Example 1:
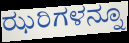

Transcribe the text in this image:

ಝರಿಗಳನ್ನೂ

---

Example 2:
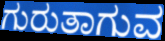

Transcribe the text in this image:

ಗುರುತಾಗುವ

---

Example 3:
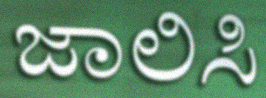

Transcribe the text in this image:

ಜಾಲಿಸಿ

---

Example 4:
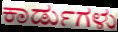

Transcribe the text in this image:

ಕಾರ್ಡುಗಳು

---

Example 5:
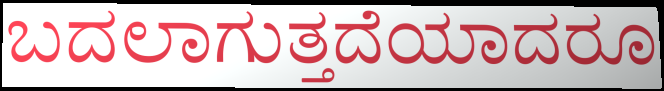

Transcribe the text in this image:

ಬದಲಾಗುತ್ತದೆಯಾದರೂ